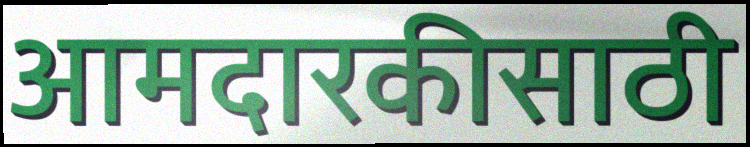
आमदारकीसाठी